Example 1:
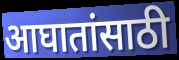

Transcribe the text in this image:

आघातांसाठी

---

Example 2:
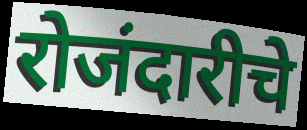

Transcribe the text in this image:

रोजंदारीचे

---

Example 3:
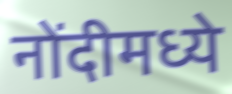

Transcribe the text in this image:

नोंदीमध्ये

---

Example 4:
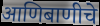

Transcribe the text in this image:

आणिबाणीचे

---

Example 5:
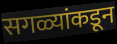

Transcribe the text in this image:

सगळ्यांकडून